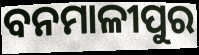
ବନମାଳୀପୁର